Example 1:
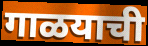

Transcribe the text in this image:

गाळयाची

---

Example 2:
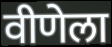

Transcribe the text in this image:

वीणेला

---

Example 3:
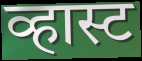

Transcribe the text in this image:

व्हास्ट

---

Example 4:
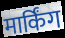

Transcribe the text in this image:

मार्किंग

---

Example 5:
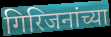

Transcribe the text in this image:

गिरिजनांच्या